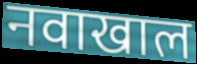
नवाखाल